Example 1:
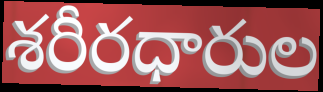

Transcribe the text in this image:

శరీరధారుల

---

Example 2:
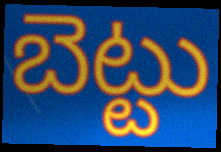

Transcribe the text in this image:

బెట్టు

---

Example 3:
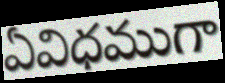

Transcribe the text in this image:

ఏవిధముగా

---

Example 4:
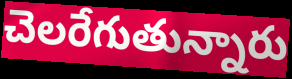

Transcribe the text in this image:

చెలరేగుతున్నారు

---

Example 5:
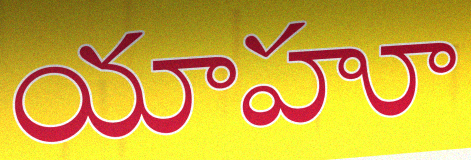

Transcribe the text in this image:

యాహూ